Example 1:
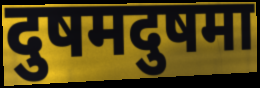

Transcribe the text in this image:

दुषमदुषमा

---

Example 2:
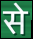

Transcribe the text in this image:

से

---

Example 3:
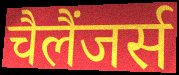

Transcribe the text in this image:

चैलैंजर्स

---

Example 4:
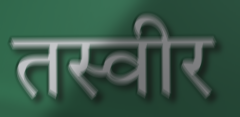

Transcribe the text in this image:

तस्वीर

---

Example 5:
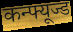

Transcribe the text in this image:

कन्फ्यूज्ड